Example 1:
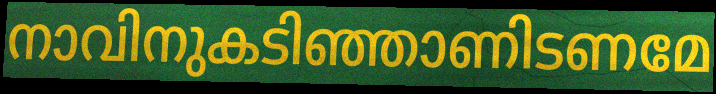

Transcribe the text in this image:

നാവിനുകടിഞ്ഞാണിടണമേ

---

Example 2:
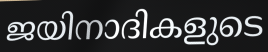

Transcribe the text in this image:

ജയിനാദികളുടെ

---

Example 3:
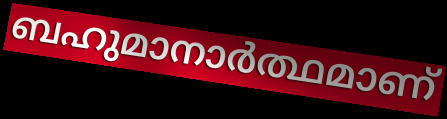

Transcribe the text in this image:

ബഹുമാനാർത്ഥമാണ്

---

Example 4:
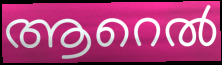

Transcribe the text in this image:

ആറെൽ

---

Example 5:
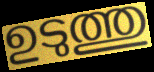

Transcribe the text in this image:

ഉടുത്തു